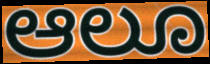
ಆಲೂ